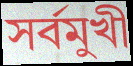
সর্বমুখী